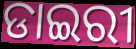
ଡାଇରୀ